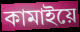
কামাইয়ে